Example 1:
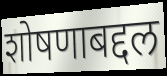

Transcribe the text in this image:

शोषणाबद्दल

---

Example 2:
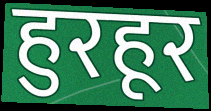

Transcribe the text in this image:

हुरहूर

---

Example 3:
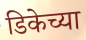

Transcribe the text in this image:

डिकेच्या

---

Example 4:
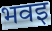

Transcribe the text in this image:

भवइ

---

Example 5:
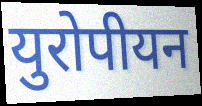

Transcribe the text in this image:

युरोपीयन